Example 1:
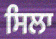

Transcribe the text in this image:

ਸਿਲਾ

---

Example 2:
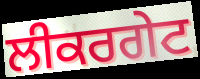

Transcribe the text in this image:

ਲੀਕਰਗੇਟ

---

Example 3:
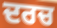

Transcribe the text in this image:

ਦਰਚ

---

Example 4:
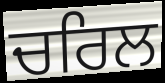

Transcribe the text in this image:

ਚਰਿਲ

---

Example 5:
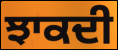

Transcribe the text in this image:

ਝਾਕਦੀ